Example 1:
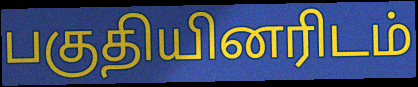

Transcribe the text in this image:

பகுதியினரிடம்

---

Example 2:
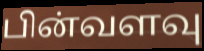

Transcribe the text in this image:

பின்வளவு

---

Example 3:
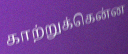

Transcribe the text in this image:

காற்றுக்கென்ன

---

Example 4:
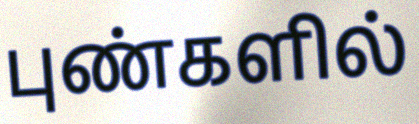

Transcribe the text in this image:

புண்களில்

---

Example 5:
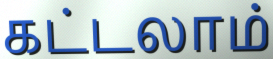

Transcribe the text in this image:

கட்டலாம்